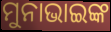
ମୁନାଭାଇଙ୍କ